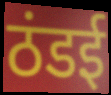
ठंडई